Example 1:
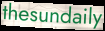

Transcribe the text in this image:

thesundaily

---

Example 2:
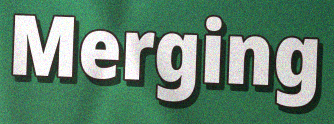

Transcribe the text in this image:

Merging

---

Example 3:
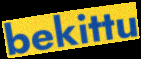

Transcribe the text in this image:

bekittu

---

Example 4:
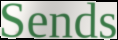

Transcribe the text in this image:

Sends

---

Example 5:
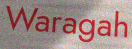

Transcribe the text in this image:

Waragah